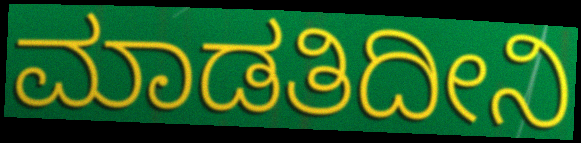
ಮಾಡತಿದೀನಿ